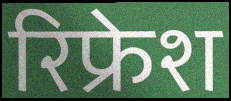
रिफ्रेश